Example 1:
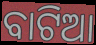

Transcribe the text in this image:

ବାଟିଆ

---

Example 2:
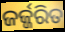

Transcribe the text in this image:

ଜର୍ଜ୍ଜରିତ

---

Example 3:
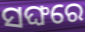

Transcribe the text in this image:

ସଙ୍ଘରେ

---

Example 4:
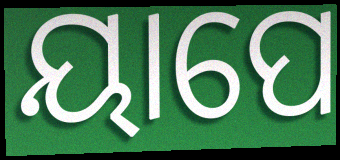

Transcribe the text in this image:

ୟାପେ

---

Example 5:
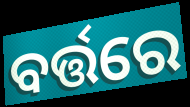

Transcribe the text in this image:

ବର୍ତ୍ତରେ